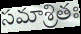
సమాశ్రితః